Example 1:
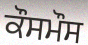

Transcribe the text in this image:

ਕੌਸਮੌਸ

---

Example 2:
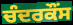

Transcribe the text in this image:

ਚੰਦਰਕੌਂਸ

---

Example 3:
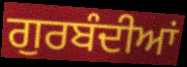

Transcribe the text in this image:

ਗੁਰਬੰਦੀਆਂ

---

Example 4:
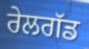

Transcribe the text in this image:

ਰੇਲਗੱਡ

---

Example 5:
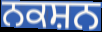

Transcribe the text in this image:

ਨਕਸ਼ਨ